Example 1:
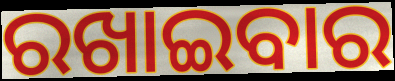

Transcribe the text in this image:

ରଖାଇବାର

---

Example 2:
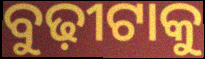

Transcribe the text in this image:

ବୁଢ଼ୀଟାକୁ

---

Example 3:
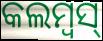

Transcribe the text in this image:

କଲମ୍ବସ୍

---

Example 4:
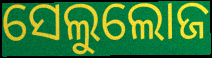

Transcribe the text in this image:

ସେଲୁଲୋଜ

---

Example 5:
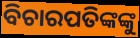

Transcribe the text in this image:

ବିଚାରପତିଙ୍କଙ୍କୁ